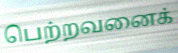
பெற்றவனைக்